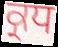
ਕ੍ਰਧ